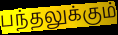
பந்தலுக்கும்